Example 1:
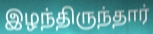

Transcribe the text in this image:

இழந்திருந்தார்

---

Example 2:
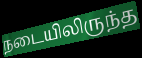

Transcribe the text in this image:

நடையிலிருந்த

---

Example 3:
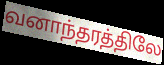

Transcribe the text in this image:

வனாந்தரத்திலே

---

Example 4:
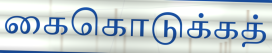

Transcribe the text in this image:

கைகொடுக்கத்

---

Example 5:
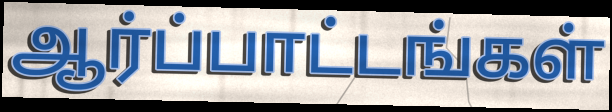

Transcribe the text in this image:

ஆர்ப்பாட்டங்கள்